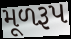
મૂળરૂપ